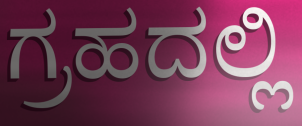
ಗ್ರಹದಲ್ಲಿ